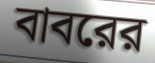
বাবরের